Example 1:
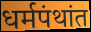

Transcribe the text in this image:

धर्मपंथांत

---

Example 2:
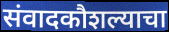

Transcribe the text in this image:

संवादकौशल्याचा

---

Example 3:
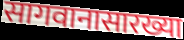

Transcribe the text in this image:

सागवानासारख्या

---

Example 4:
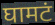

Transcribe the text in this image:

घामटं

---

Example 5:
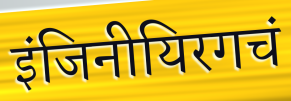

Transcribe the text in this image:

इंजिनीयिरगचं